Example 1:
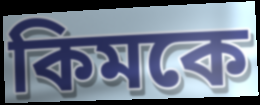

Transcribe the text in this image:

কিমকে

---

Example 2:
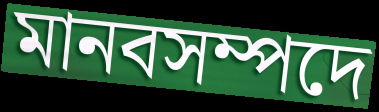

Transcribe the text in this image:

মানবসম্পদে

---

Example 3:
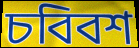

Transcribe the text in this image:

চবিবশ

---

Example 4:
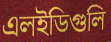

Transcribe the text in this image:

এলইডিগুলি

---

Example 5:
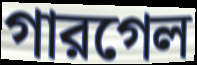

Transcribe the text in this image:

গারগেল